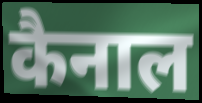
कैनाल